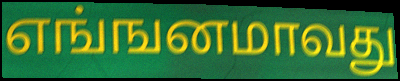
எங்ஙனமாவது